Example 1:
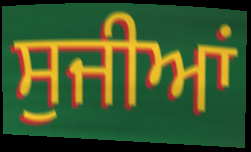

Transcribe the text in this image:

ਸੁਜੀਆਂ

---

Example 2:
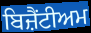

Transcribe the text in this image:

ਬਿਜ਼ੈਂਟੀਅਮ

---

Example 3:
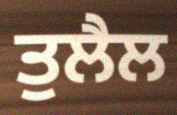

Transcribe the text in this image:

ਤੁਲੈਲ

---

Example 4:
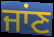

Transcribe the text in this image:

ਜਾਂਣ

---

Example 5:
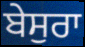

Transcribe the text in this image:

ਬੇਸੁਰਾ